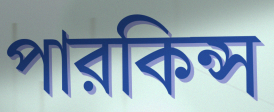
পারকিন্স